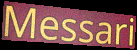
Messari